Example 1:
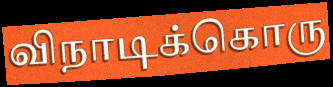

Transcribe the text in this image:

விநாடிக்கொரு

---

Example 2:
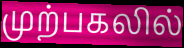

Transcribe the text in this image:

முற்பகலில்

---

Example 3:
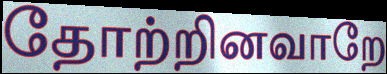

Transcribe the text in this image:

தோற்றினவாறே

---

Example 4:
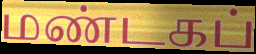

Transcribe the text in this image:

மண்டகப்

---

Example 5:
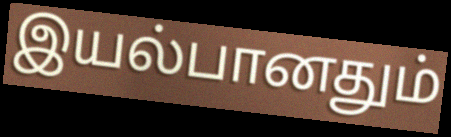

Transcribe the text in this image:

இயல்பானதும்